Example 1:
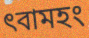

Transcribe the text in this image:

ৎবামহং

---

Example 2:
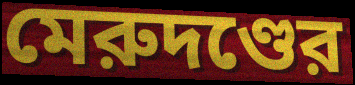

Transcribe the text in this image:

মেরুদণ্ডের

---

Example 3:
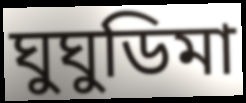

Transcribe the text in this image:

ঘুঘুডিমা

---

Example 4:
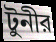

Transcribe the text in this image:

টুনীর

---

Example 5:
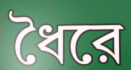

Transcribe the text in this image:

ধৈরে